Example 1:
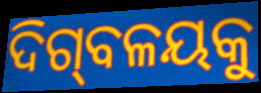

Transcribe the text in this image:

ଦିଗ୍‌ବଳୟକୁ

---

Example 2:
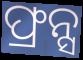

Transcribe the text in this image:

ଫ୍ରନ୍ସ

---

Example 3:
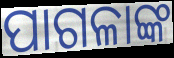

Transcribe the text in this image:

ପାଗଳାଙ୍କ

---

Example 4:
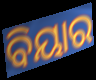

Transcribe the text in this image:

ବିୟାର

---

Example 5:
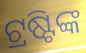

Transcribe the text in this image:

ଟ୍ରଷ୍ଟିଙ୍କ